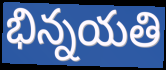
భిన్నయతి